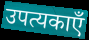
उपत्यकाएँ